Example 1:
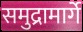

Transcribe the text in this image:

समुद्रामार्गे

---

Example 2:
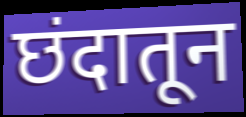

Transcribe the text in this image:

छंदातून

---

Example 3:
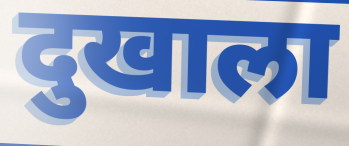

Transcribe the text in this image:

दुखाला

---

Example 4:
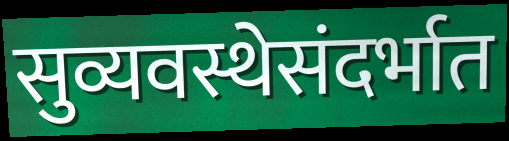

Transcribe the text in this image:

सुव्यवस्थेसंदर्भात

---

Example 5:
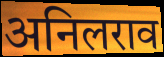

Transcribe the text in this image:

अनिलराव